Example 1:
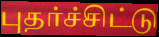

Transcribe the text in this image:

புதர்ச்சிட்டு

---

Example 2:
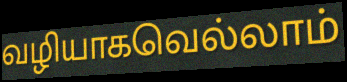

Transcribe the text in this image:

வழியாகவெல்லாம்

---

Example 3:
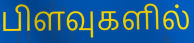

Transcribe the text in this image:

பிளவுகளில்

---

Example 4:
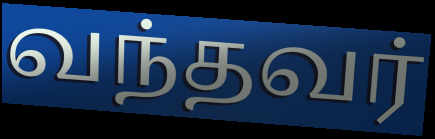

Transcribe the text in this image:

வந்தவர்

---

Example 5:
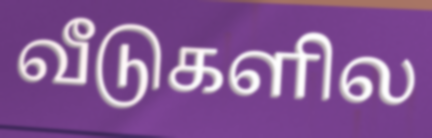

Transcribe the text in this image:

வீடுகளில